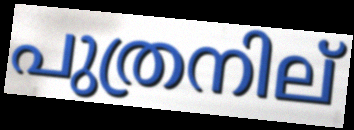
പുത്രനില്